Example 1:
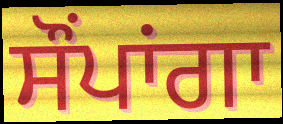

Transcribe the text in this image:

ਸੌਂਪਾਂਗਾ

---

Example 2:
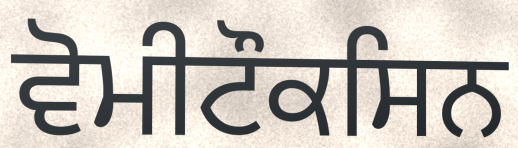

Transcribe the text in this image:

ਵੋਮੀਟੌਕਸਿਨ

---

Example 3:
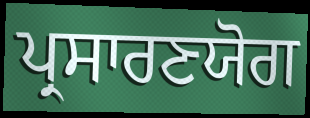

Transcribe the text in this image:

ਪ੍ਰਸਾਰਣਯੋਗ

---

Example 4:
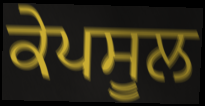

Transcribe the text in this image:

ਕੇਪਸੂਲ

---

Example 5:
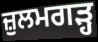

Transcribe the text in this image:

ਜ਼ੁਲਮਗੜ੍ਹ